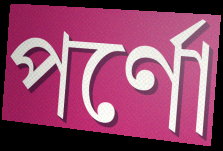
পর্ণো